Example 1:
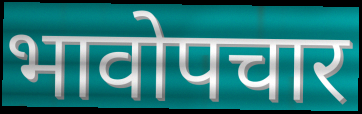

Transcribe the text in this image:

भावोपचार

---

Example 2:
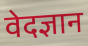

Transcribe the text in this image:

वेदज्ञान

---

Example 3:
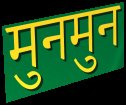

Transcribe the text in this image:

मुनमुन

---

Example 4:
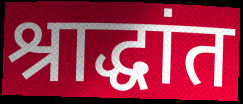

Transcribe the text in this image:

श्राद्धांत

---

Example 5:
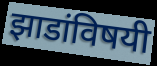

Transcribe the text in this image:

झाडांविषयी